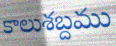
కాలుశబ్దము